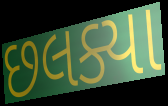
છલક્યા